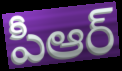
పీఆర్